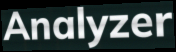
Analyzer